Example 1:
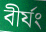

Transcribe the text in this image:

বীর্যং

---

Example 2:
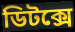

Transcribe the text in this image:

ডিটক্সে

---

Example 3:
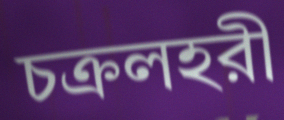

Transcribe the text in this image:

চক্রলহরী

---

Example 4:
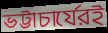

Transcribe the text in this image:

ভট্টাচার্যেরই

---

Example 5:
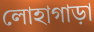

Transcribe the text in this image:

লোহাগাড়া